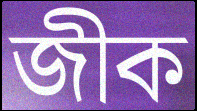
জীক